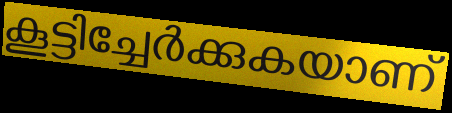
കൂട്ടിച്ചേർക്കുകയാണ്